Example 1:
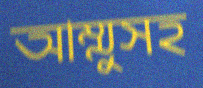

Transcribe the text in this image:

আম্মুসহ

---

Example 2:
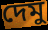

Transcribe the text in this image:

দেমু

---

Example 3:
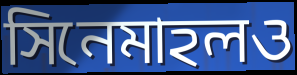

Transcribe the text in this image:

সিনেমাহলও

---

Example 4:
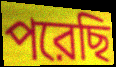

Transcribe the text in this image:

পরেছি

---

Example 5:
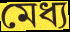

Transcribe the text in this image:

মেধ্য